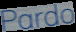
Pardo